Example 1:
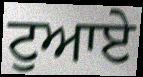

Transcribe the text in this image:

ਟੁਆਏ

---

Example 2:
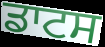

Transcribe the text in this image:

ਡਾਟਸ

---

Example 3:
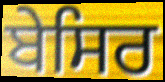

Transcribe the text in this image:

ਬੇਸਿਰ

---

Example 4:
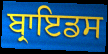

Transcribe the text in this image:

ਬ੍ਰਾਇਡਸ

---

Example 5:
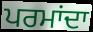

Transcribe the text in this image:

ਪਰਮਾਂਦਾ